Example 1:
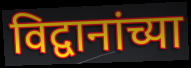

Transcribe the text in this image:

विद्वानांच्या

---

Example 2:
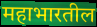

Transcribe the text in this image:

महाभारतील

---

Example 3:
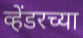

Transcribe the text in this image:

व्हेंडरच्या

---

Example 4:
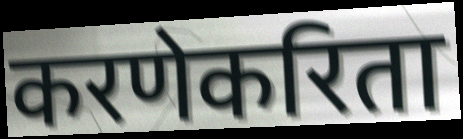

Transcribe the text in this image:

करणेकरिता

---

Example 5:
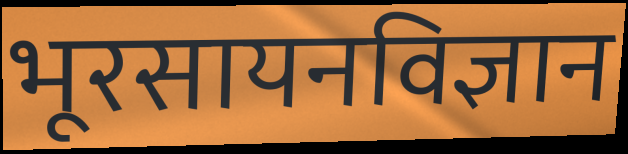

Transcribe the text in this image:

भूरसायनविज्ञान